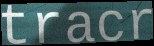
tracr